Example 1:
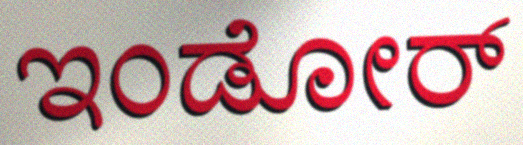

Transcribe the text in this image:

ಇಂಡೋರ್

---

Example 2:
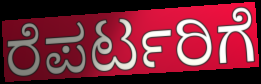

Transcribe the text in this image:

ರೆಪರ್ಟರಿಗೆ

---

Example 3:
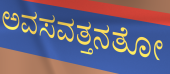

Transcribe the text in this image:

ಅವಸವತ್ತನತೋ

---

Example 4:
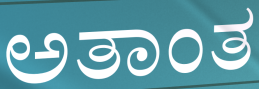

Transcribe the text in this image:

ಅತಾಂತ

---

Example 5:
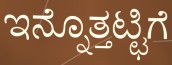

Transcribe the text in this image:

ಇನ್ನೊತ್ತಟ್ಟಿಗೆ